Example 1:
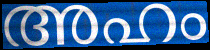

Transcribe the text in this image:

അഹം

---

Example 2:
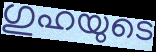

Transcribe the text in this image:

ഗുഹയുടെ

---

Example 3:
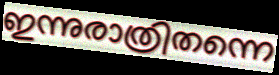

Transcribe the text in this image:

ഇന്നുരാത്രിതന്നെ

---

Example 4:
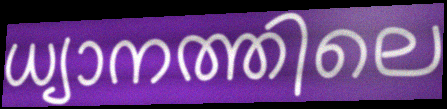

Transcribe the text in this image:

ധ്യാനത്തിലെ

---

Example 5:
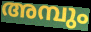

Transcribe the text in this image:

അമ്പും